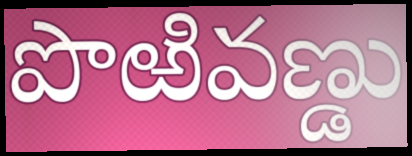
పొఱివణ్డు